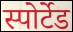
स्पोर्टेड